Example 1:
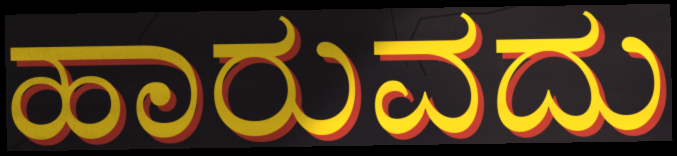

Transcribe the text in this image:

ಹಾರುವದು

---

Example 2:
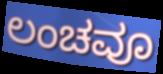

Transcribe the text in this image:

ಲಂಚವೂ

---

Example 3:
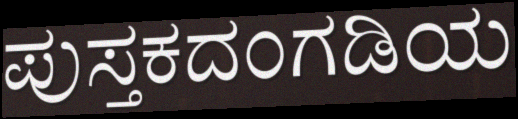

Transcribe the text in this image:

ಪುಸ್ತಕದಂಗಡಿಯ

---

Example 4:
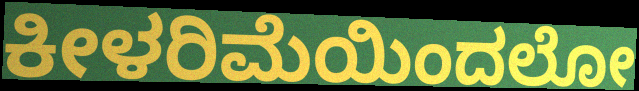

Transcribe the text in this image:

ಕೀಳರಿಮೆಯಿಂದಲೋ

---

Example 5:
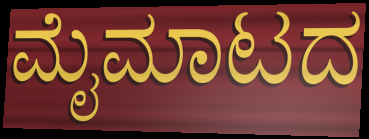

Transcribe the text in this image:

ಮೈಮಾಟದ